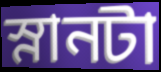
স্নানটা